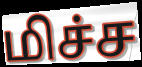
மிச்ச